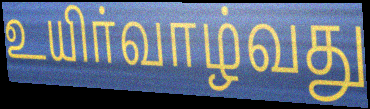
உயிர்வாழ்வது